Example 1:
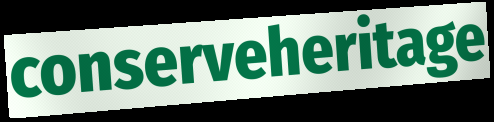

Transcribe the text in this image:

conserveheritage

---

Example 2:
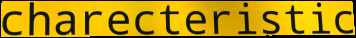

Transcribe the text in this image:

charecteristic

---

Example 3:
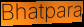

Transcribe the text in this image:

Bhatpara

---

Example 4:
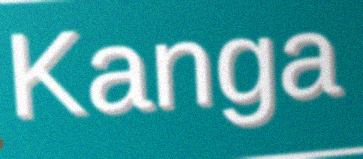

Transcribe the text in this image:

Kanga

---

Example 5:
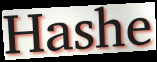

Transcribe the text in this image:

Hashe